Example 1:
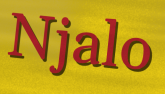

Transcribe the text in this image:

Njalo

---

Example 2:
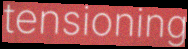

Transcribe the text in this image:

tensioning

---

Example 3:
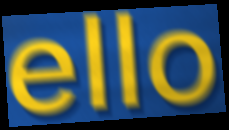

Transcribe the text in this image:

ello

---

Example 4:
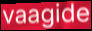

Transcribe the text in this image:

vaagide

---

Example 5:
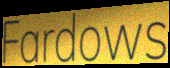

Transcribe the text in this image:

Fardows